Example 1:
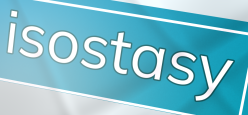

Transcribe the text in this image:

isostasy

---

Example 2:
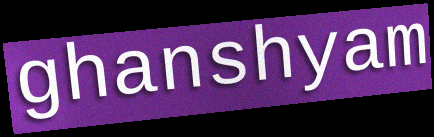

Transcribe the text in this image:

ghanshyam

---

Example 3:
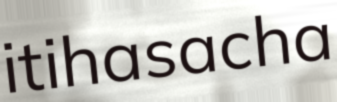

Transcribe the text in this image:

itihasacha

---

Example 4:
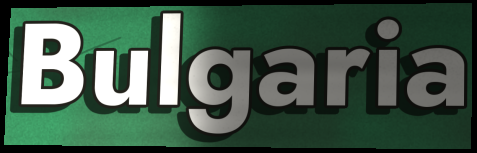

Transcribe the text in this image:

Bulgaria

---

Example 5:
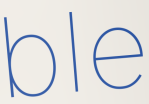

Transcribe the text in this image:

ble